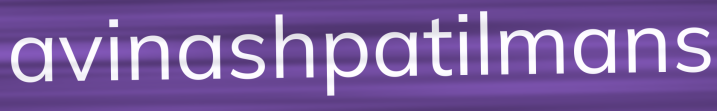
avinashpatilmans